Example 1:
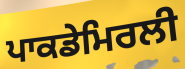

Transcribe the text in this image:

ਪਾਕਡੇਮਿਰਲੀ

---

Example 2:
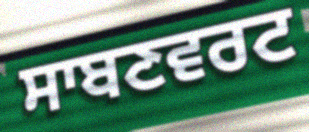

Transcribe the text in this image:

ਸਾਬਣਵਰਟ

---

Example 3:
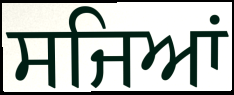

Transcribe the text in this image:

ਸਜਿਆਂ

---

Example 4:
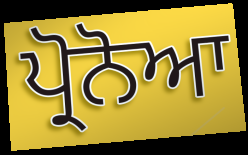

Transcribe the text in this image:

ਪ੍ਰੋਨੋਆ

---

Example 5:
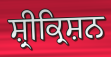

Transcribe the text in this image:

ਸ਼੍ਰੀਕ੍ਰਿਸ਼ਨ